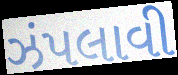
ઝંપલાવી